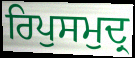
ਰਿਪੁਸਮੁਦ੍ਰ